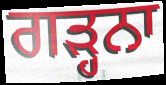
ਗੜ੍ਹਨਾ